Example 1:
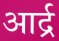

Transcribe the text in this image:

आर्द्र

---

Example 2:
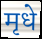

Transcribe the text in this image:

मृधे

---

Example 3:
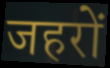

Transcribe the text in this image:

जहरों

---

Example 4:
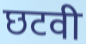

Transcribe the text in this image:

छटवी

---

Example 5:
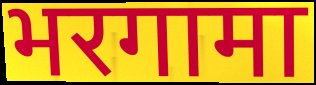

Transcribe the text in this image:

भरगामा